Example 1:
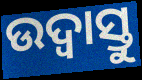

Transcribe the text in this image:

ଉଦ୍ବାସ୍ତୁ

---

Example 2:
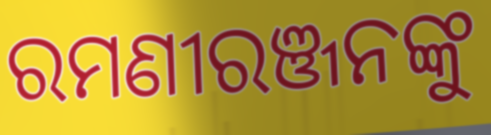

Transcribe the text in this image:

ରମଣୀରଞ୍ଜନଙ୍କୁ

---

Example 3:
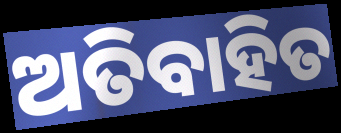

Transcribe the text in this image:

ଅତିବାହିତ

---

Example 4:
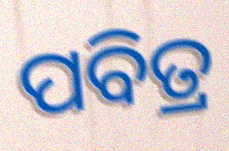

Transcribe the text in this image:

ପବିତ୍ର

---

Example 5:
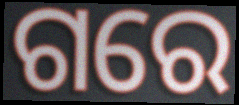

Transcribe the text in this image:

ଗରେ